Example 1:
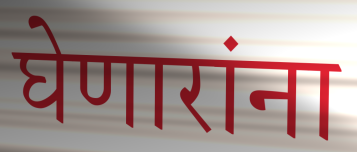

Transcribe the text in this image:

घेणारांना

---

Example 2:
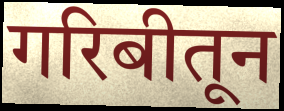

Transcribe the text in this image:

गरिबीतून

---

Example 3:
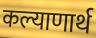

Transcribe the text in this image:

कल्याणार्थ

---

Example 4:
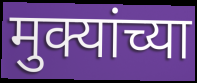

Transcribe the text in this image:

मुक्यांच्या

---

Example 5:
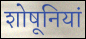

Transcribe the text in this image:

शोषूनियां